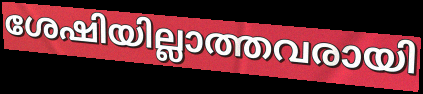
ശേഷിയില്ലാത്തവരായി